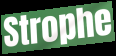
Strophe